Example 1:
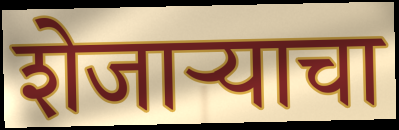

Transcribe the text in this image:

शेजार्‍याचा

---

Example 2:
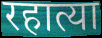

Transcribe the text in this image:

रहात्या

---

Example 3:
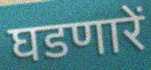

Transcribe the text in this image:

घडणारें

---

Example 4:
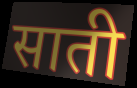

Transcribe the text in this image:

साती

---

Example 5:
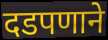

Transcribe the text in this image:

दडपणाने